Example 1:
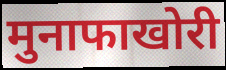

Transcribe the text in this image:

मुनाफाखोरी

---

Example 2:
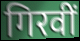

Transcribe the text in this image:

गिरवीं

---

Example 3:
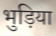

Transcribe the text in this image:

भुड़िया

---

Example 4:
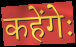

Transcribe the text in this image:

कहेंगेः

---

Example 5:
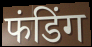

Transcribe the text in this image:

फंडिंग